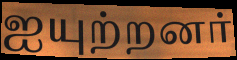
ஐயுற்றனர்